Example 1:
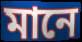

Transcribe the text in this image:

মানে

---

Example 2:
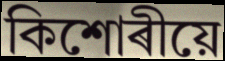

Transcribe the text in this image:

কিশোৰীয়ে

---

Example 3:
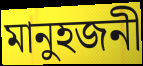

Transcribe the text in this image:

মানুহজনী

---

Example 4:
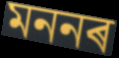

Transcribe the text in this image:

মননৰ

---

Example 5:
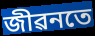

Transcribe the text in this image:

জীৱনতে